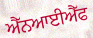
ਐੱਨਆਈਐੱਫ